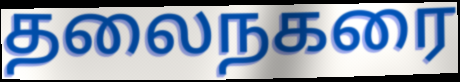
தலைநகரை